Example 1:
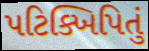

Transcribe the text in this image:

પટિક્ખિપિતું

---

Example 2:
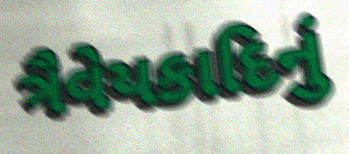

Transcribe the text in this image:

ત્રૈવેયકાદિનું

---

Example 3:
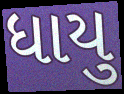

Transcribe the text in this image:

ધાયુ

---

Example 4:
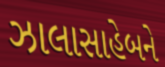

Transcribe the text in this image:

ઝાલાસાહેબને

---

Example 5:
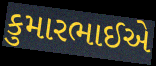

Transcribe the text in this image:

કુમારભાઈએ